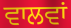
ਵਾਲਵਾਂ